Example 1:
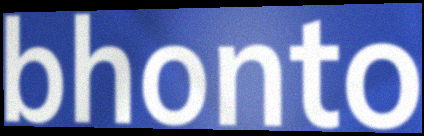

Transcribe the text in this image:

bhonto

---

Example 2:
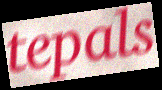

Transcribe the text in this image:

tepals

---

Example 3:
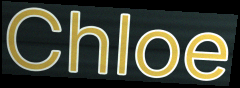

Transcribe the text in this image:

Chloe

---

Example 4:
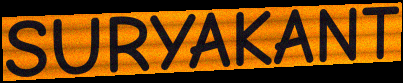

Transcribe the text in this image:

SURYAKANT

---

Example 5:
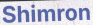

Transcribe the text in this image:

Shimron